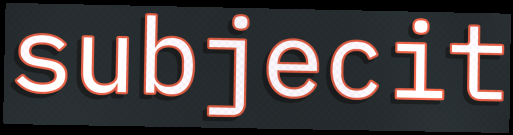
subjecit